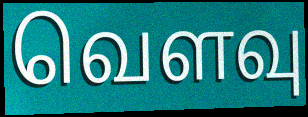
வெளவு